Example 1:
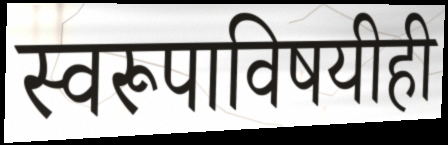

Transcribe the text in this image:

स्वरूपाविषयीही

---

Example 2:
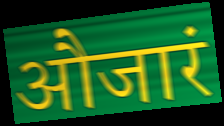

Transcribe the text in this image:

औजारं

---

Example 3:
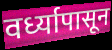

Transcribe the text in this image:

वर्ध्यापासून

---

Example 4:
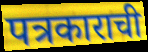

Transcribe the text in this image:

पत्रकाराची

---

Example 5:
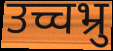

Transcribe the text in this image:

उच्चभ्रु